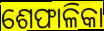
ଶେଫାଳିକା